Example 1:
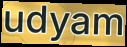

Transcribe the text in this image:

udyam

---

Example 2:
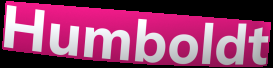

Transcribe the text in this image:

Humboldt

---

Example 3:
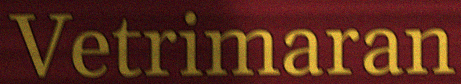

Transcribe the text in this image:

Vetrimaran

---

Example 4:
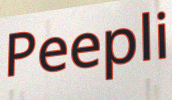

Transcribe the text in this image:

Peepli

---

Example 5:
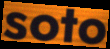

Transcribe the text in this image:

soto